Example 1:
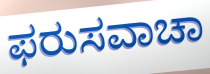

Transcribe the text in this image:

ಫರುಸವಾಚಾ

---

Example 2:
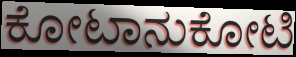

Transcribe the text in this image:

ಕೋಟಾನುಕೋಟಿ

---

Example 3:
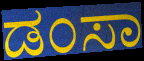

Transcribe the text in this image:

ಡಂಸಾ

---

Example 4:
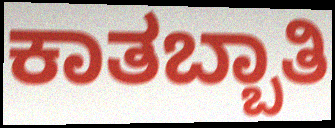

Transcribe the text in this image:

ಕಾತಬ್ಬಾತಿ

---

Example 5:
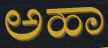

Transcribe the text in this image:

ಅಹಾ